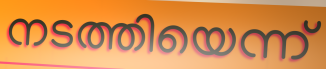
നടത്തിയെന്ന്